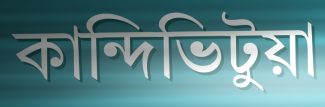
কান্দিভিটুয়া